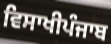
ਵਿਸਾਖੀਪੰਜਾਬ